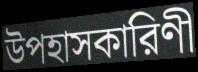
উপহাসকারিণী